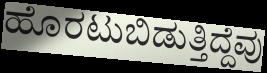
ಹೊರಟುಬಿಡುತ್ತಿದ್ದೆವು